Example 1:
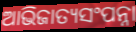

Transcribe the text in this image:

ଆଭିଜାତ୍ୟସଂପନ୍ନା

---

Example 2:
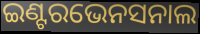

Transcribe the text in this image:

ଇଣ୍ଟରଭେନସନାଲ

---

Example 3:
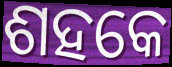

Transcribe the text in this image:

ଶହକେ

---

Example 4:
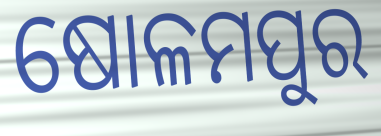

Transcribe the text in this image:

ଷୋଳମପୁର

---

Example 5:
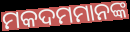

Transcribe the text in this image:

ମକଦମମାନଙ୍କ